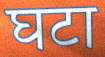
घटा